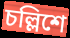
চল্লিশে